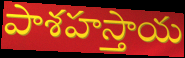
పాశహస్తాయ